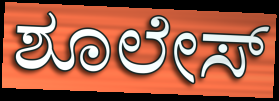
ಶೂಲೇಸ್